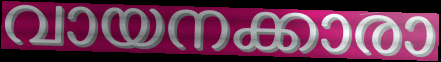
വായനക്കാരാ